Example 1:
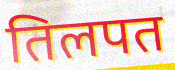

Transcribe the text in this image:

तिलपत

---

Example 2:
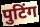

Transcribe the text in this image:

पुटिंग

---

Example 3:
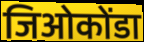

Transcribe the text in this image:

जिओकोंडा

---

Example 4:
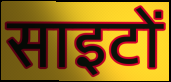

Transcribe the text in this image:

साइटों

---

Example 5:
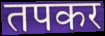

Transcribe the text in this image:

तपकर